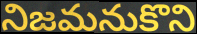
నిజమనుకొని